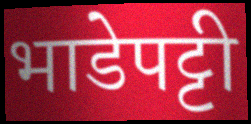
भाडेपट्टी